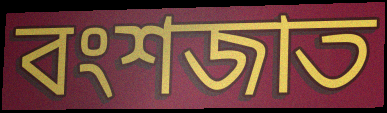
বংশজাত